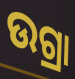
ଉଗ୍ରା